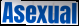
Asexual